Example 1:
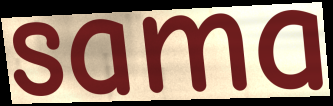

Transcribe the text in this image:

sama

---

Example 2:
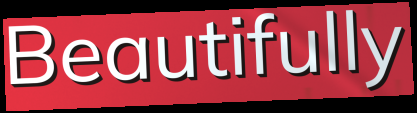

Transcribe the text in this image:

Beautifully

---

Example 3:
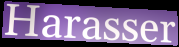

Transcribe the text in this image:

Harasser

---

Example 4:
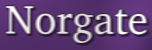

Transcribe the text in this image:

Norgate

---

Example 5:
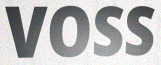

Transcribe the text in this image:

VOSS